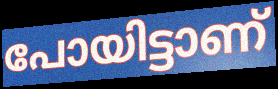
പോയിട്ടാണ്